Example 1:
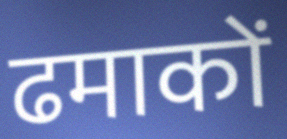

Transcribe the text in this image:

ढमाकों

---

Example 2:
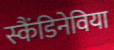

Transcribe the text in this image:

स्कैंडिनेविया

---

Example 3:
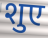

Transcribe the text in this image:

शुए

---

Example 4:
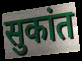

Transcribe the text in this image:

सुकांत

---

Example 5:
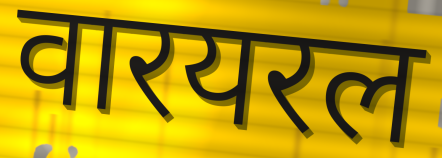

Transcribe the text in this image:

वारयरल